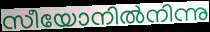
സീയോനിൽനിന്നു